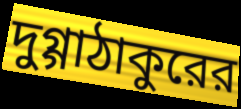
দুগ্গাঠাকুরের